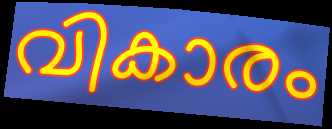
വികാരം